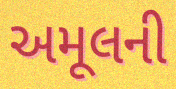
અમૂલની